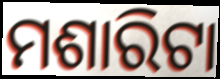
ମଶାରିଟା